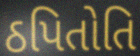
ઠપિતોતિ